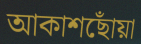
আকাশছোঁয়া